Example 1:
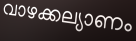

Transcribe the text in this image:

വാഴക്കല്യാണം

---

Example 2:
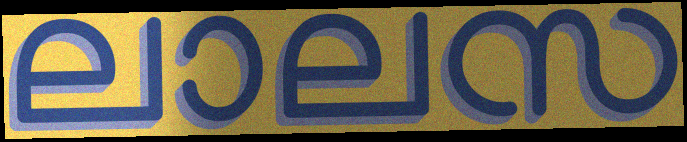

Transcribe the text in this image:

ലാലസ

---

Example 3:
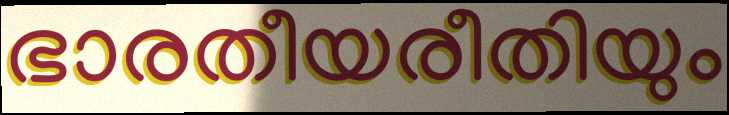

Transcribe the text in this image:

ഭാരതീയരീതിയും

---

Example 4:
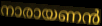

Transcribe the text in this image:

നാരായണൻ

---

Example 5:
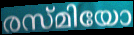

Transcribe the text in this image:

രസ്മിയോ